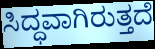
ಸಿದ್ಧವಾಗಿರುತ್ತದೆ